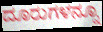
ದೂರುಗಳನ್ನೂ